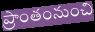
ప్రాంతంనుంచి